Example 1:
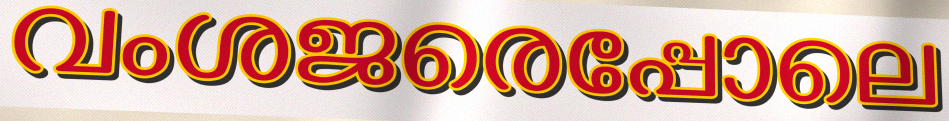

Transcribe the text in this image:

വംശജരെപ്പോലെ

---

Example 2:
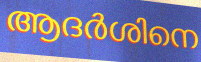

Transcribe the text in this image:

ആദർശിനെ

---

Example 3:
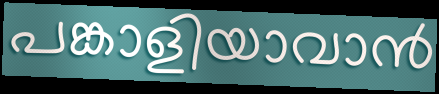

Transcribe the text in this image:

പങ്കാളിയാവാൻ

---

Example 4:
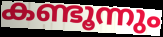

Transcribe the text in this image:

കണ്ടൂന്നും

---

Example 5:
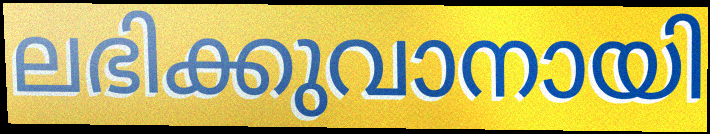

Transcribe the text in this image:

ലഭിക്കുവാനായി